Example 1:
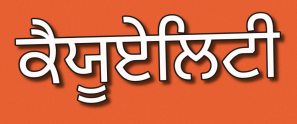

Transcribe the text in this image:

ਕੈਯੂਏਲਿਟੀ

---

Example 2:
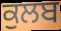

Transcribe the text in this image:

ਕੁਲਬ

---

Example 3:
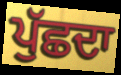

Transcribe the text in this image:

ਪੁੱਛਦਾ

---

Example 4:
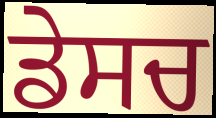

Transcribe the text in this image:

ਡੇਸਚ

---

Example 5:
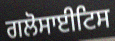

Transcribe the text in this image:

ਗਲੋਸਾਈਟਿਸ